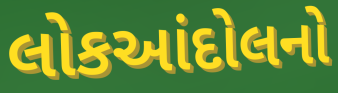
લોકઆંદોલનો